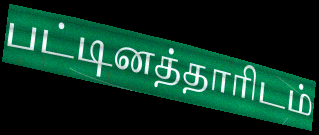
பட்டினத்தாரிடம்